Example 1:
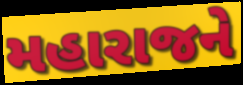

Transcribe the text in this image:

મહારાજને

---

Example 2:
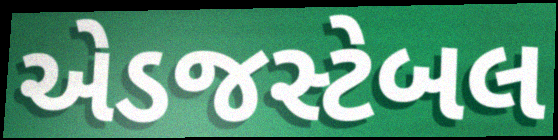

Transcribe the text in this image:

એડજસ્ટેબલ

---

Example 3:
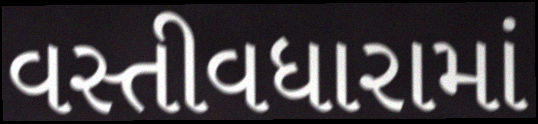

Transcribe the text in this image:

વસ્તીવધારામાં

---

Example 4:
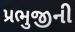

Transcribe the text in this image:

પ્રભુજીની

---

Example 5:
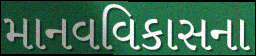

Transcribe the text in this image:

માનવવિકાસના